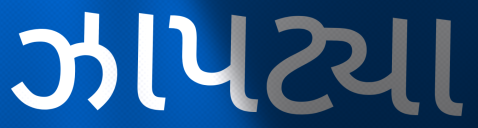
ઝાપટ્યા